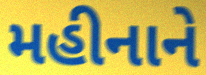
મહીનાને